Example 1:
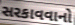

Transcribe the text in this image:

સરકાવવાનો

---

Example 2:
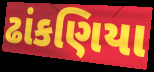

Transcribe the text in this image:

ઢાંકણિયા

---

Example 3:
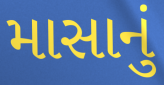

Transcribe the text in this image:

માસાનું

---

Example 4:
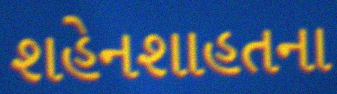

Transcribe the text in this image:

શહેનશાહતના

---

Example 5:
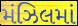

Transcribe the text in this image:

મંઝિલમાં